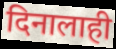
दिनालाही